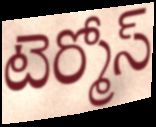
టెర్మోస్